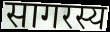
सागरस्य